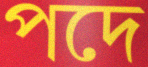
পদে